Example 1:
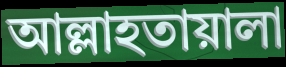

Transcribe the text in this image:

আল্লাহতায়ালা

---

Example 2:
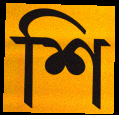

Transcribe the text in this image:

শি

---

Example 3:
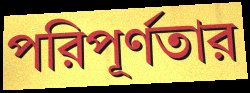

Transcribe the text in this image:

পরিপূর্ণতার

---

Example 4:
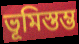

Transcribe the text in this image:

ভূমিস্তম্ভ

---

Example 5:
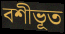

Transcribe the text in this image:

বশীভূত